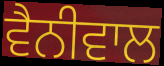
ਵੈਨੀਵਾਲ